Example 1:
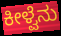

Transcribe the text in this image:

ಕೀಳ್ವೆನು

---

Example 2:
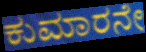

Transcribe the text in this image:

ಕುಮಾರನೇ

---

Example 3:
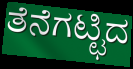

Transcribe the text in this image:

ತೆನೆಗಟ್ಟಿದ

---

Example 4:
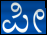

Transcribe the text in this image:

ಪೀ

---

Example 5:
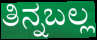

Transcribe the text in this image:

ತಿನ್ನಬಲ್ಲ